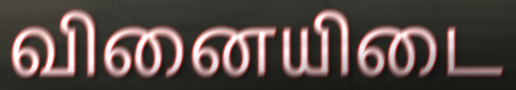
வினையிடை